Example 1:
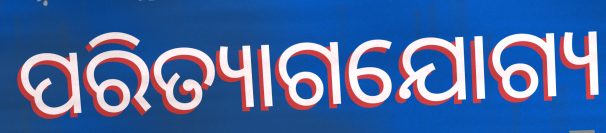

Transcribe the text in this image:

ପରିତ୍ୟାଗଯୋଗ୍ୟ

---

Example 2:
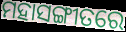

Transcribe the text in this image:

ମହାସଙ୍ଗୀତରେ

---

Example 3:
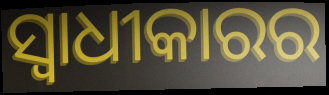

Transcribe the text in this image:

ସ୍ୱାଧୀକାରର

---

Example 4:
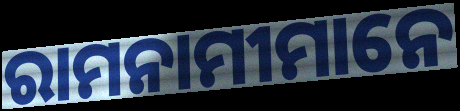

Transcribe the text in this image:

ରାମନାମୀମାନେ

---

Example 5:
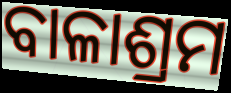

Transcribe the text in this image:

ବାଳାଶ୍ରମ